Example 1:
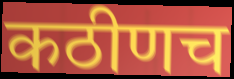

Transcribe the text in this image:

कठीणच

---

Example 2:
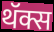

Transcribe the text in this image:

थॅक्स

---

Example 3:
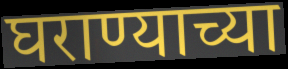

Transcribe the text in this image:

घराण्याच्या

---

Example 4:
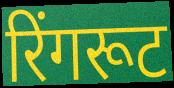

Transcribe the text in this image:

रिंगरूट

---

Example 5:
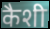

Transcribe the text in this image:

कैशी